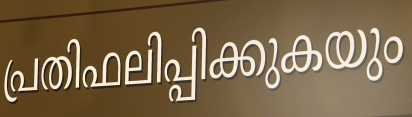
പ്രതിഫലിപ്പിക്കുകയും